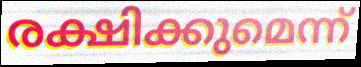
രക്ഷിക്കുമെന്ന്